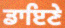
ਡਾਇਣੇ